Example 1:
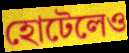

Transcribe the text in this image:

হোটেলেও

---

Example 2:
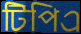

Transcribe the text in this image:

টিপিএ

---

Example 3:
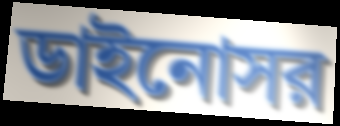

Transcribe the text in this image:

ডাইনোসর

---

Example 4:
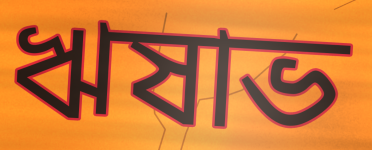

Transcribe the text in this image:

ঋষাভ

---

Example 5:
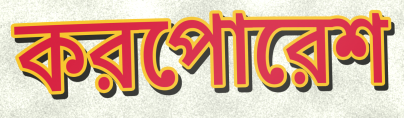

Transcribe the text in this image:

করপোরেশ